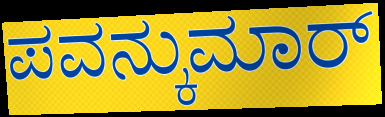
ಪವನ್ಕುಮಾರ್